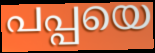
പപ്പയെ